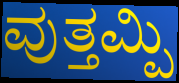
ವುತ್ತಮ್ಪಿ